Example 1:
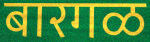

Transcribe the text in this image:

बारगळ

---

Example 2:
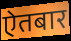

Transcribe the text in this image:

ऐतबार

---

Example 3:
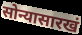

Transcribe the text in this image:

सोन्यासारखं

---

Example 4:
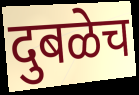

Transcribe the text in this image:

दुबळेच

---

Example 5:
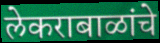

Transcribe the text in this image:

लेकराबाळांचे